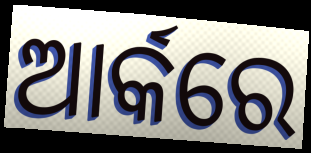
ଆର୍କରେ